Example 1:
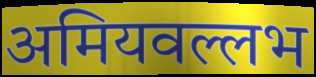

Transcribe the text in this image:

अमियवल्लभ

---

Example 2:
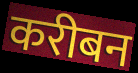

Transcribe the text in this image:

करीबन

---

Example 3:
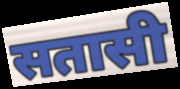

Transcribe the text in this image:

सतासी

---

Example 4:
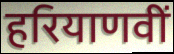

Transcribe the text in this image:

हरियाणवीं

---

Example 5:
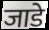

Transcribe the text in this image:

जाडे